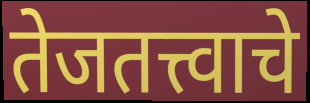
तेजतत्त्वाचे